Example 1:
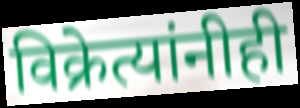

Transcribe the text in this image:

विक्रेत्यांनीही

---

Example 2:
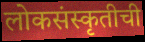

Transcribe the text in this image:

लोकसंस्कृतीची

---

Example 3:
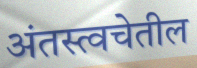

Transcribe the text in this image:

अंतस्त्वचेतील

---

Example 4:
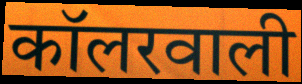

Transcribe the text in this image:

कॉलरवाली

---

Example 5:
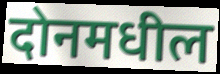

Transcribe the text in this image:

दोनमधील